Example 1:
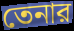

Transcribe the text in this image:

তেনার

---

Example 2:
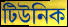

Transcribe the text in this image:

টিউনিক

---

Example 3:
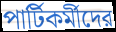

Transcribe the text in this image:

পার্টিকর্মীদের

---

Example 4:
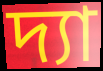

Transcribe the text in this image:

দ্যা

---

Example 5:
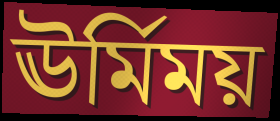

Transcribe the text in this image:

ঊর্মিময়